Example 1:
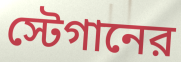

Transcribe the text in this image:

স্টেগানের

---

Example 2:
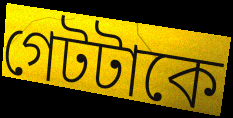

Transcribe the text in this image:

গেটটাকে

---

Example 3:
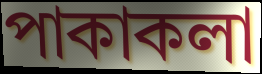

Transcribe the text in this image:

পাকাকলা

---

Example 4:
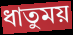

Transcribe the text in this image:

ধাতুময়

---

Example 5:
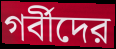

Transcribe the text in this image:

গর্বীদের